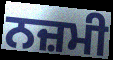
ਨਜ਼ਮੀ